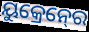
ୟୁକ୍ରେନ୍‍ରେ